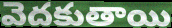
వెదకుతాయి